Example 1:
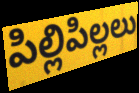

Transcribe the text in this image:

పిల్లిపిల్లలు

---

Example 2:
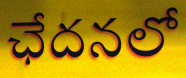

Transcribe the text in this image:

ఛేదనలో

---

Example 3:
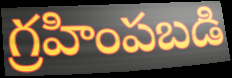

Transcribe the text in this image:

గ్రహింపబడి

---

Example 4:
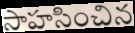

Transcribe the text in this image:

సాహసించిన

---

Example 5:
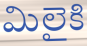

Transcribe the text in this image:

మిలైకి